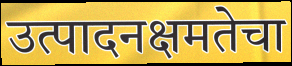
उत्पादनक्षमतेचा